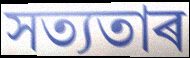
সত্যতাৰ